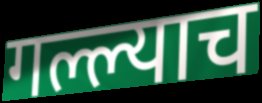
गल्ल्याच